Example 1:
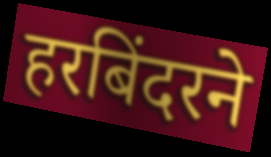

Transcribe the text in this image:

हरबिंदरने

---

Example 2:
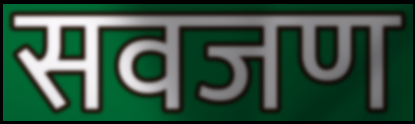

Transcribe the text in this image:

सवजण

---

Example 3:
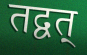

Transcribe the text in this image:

तद्वत्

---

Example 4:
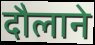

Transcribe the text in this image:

दौलाने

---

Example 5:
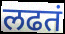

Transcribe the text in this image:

लढतं